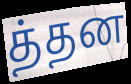
த்தன